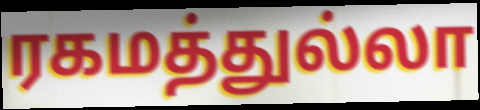
ரகமத்துல்லா